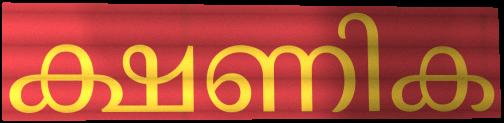
ക്ഷണിക